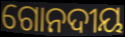
ଗୋନଦୀୟ